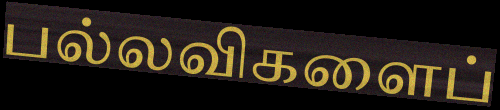
பல்லவிகளைப்